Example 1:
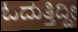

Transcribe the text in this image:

ಓದುತ್ತಿದ್ದೀ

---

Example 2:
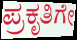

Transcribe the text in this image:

ಪ್ರಕೃತಿಗೇ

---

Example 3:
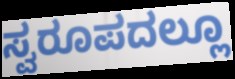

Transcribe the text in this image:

ಸ್ವರೂಪದಲ್ಲೂ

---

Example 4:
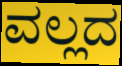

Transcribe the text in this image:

ವಲ್ಲದ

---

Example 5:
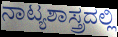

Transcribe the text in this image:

ನಾಟ್ಯಶಾಸ್ತ್ರದಲ್ಲಿ